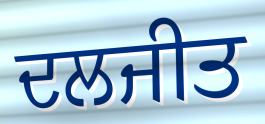
ਦਲਜੀਤ